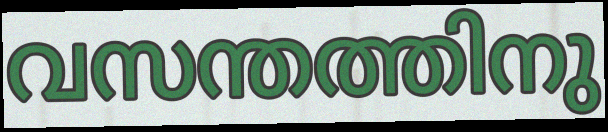
വസന്തത്തിനു